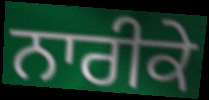
ਨਾਰੀਕੇ